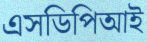
এসডিপিআই